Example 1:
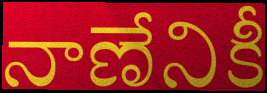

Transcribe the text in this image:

నాణేనికీ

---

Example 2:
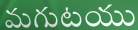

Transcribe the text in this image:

మగుటయు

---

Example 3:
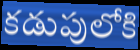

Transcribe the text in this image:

కడుపులోకి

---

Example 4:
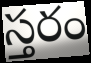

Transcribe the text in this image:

స్తరం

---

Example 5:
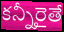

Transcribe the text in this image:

కన్నీరైతే